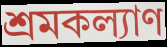
শ্রমকল্যাণ